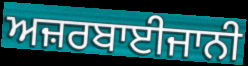
ਅਜ਼ਰਬਾਈਜਾਨੀ